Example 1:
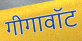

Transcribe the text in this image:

गीगावॉट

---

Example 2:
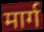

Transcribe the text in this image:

मार्ग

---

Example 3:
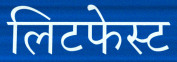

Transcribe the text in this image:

लिटफेस्ट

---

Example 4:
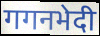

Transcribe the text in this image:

गगनभेदी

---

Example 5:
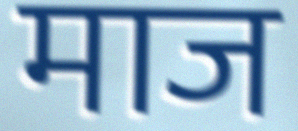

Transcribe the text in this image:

माज